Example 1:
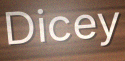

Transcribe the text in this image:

Dicey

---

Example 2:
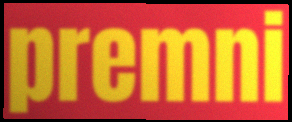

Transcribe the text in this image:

premni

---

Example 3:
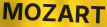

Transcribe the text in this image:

MOZART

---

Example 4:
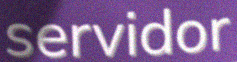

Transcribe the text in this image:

servidor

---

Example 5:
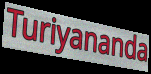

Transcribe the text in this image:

Turiyananda